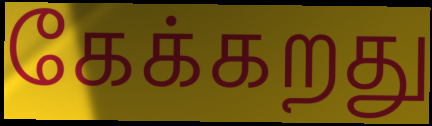
கேக்கறது